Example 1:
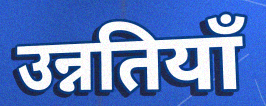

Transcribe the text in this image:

उन्नतियाँ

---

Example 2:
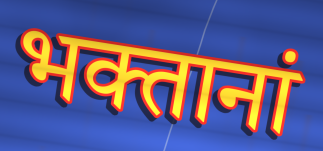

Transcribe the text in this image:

भक्तानां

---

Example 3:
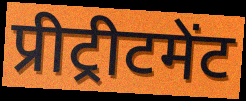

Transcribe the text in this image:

प्रीट्रीटमेंट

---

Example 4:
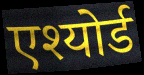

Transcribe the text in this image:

एश्योर्ड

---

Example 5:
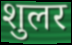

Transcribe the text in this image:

शुलर